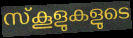
സ്‌കൂളുകളുടെ